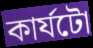
কাৰ্যটো